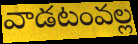
వాడటంవల్ల